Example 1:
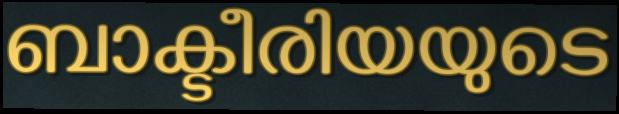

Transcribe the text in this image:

ബാക്ടീരിയയുടെ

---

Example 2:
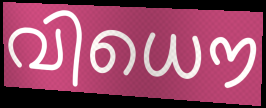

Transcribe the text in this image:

വിധൌ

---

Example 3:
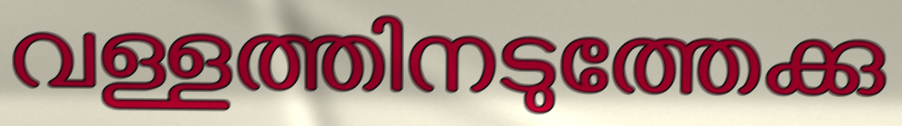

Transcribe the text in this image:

വള്ളത്തിനടുത്തേക്കു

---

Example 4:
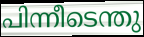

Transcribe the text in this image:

പിന്നീടെന്തു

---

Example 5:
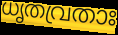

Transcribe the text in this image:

ധൃതവ്രതാഃ